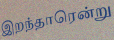
இறந்தாரென்று